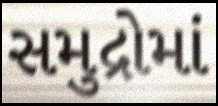
સમુદ્રોમાં